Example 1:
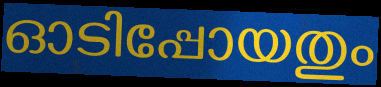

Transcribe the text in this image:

ഓടിപ്പോയതും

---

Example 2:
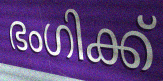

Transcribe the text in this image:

ഭംഗിക്ക്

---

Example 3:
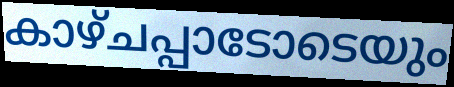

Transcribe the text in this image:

കാഴ്ചപ്പാടോടെയും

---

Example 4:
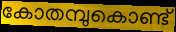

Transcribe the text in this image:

കോതമ്പുകൊണ്ട്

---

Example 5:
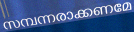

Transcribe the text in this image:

സമ്പന്നരാക്കണമേ